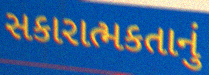
સકારાત્મકતાનું